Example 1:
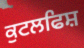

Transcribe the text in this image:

ਕੁਟਲਫਿਸ਼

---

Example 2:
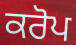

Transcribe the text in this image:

ਕਰੋਪ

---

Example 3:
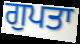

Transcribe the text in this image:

ਗੁਪਤਾ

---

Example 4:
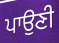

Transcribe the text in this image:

ਪਾਉਣੀ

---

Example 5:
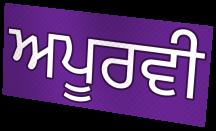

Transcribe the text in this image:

ਅਪੂਰਵੀ